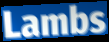
Lambs